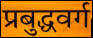
प्रबुद्धवर्ग